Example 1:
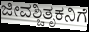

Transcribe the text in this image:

ಜೀವಶ್ಚಿತೃಕನಿಗೆ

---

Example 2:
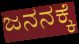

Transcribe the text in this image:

ಜನನಕ್ಕೆ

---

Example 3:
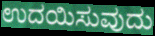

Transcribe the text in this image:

ಉದಯಿಸುವುದು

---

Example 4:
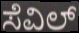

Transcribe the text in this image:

ಸೆವಿಲ್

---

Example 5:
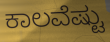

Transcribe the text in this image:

ಕಾಲವೆಷ್ಟು